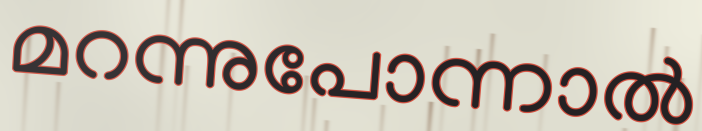
മറന്നുപോന്നാൽ